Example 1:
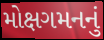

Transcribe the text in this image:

મોક્ષગમનનું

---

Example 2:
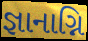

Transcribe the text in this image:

જ્ઞાનાગ્નિ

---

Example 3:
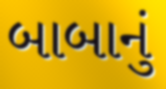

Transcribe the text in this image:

બાબાનું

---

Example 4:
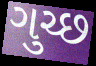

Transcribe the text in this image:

ગુચ્છ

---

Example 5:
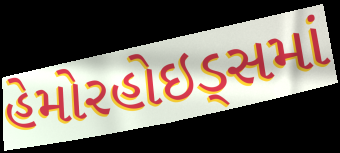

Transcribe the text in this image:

હેમોરહોઇડ્સમાં